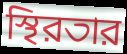
স্থিরতার